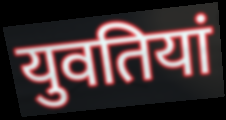
युवतियां